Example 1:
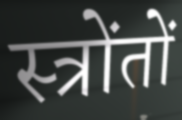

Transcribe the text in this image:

स्त्रोंतों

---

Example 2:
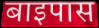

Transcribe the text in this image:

बाइपास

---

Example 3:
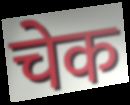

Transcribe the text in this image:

चेक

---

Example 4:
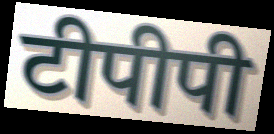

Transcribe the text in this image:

टीपीपी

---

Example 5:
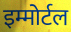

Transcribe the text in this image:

इम्मोर्टल